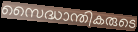
സൈദ്ധാന്തികരുടെ